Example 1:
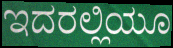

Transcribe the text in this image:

ಇದರಲ್ಲಿಯೂ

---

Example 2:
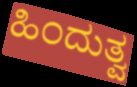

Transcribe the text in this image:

ಹಿಂದುತ್ವ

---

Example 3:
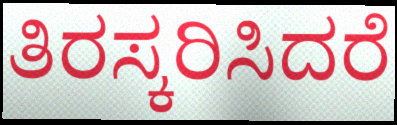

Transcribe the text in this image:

ತಿರಸ್ಕರಿಸಿದರೆ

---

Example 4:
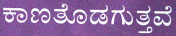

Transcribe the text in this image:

ಕಾಣತೊಡಗುತ್ತವೆ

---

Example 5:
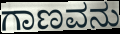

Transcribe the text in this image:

ಗಾಣವನು